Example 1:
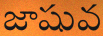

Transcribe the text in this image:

జాషువ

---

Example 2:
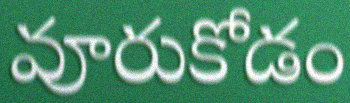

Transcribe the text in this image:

వూరుకోడం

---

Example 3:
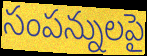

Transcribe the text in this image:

సంపన్నులపై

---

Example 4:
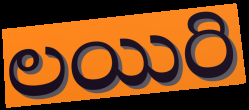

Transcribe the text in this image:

లయిరి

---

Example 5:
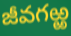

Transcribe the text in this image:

జీవగఱ్ఱ